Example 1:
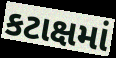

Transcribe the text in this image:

કટાક્ષમાં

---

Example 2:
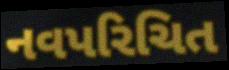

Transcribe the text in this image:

નવપરિચિત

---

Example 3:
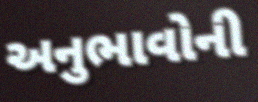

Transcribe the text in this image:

અનુભાવોની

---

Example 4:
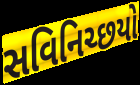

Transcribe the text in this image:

સવિનિચ્છયો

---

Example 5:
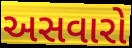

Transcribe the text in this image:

અસવારો